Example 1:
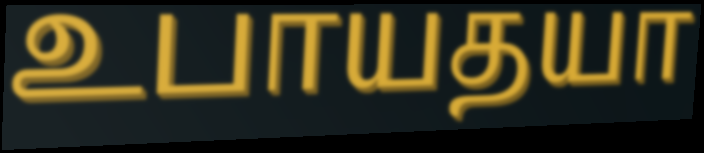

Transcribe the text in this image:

உபாயதயா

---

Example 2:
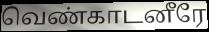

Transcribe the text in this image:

வெண்காடனீரே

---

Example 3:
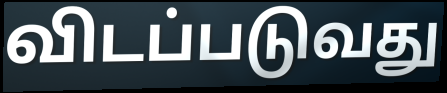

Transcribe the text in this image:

விடப்படுவது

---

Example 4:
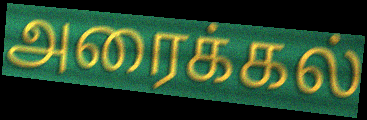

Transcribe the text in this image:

அரைக்கல்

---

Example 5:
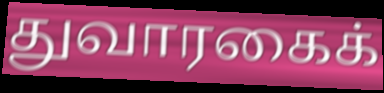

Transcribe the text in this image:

துவாரகைக்